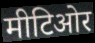
मीटिओर